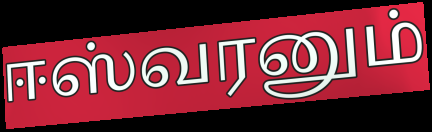
ஈஸ்வரனும்